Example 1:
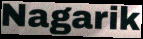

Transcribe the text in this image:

Nagarik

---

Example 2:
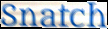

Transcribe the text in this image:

Snatch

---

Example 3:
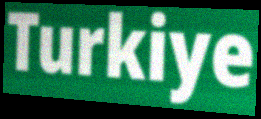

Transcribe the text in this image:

Turkiye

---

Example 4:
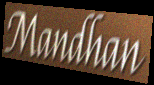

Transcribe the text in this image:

Mandhan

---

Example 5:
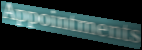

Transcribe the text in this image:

Appointments